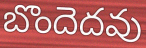
బొందెదవు